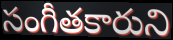
సంగీతకారుని